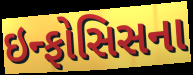
ઇન્ફોસિસના